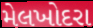
મેલખોદરા